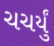
ચચર્યું